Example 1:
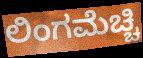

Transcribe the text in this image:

ಲಿಂಗಮೆಚ್ಚಿ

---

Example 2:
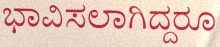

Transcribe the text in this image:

ಭಾವಿಸಲಾಗಿದ್ದರೂ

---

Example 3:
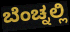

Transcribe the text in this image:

ಬೆಂಚ್ನಲ್ಲಿ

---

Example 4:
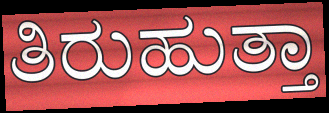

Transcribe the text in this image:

ತಿರುಹುತ್ತಾ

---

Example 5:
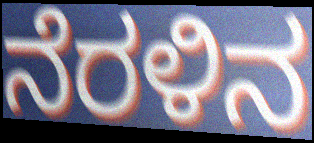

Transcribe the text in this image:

ನೆರಳಿನ